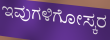
ಇವುಗಳಿಗೋಸ್ಕರ